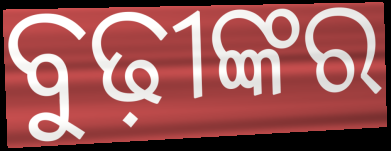
ବୁଢ଼ୀଙ୍କର